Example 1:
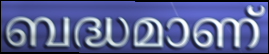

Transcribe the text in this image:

ബദ്ധമാണ്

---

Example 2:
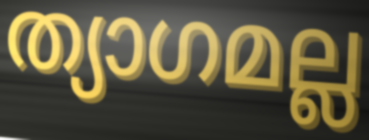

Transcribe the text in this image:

ത്യാഗമല്ല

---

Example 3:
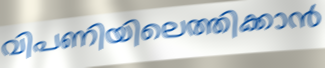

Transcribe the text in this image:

വിപണിയിലെത്തിക്കാൻ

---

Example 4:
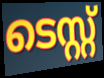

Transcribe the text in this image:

ടെസ്റ്റ്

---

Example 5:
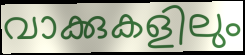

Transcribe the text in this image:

വാക്കുകളിലും